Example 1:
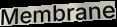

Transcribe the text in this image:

Membrane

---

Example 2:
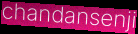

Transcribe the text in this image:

chandansenji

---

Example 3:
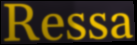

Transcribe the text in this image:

Ressa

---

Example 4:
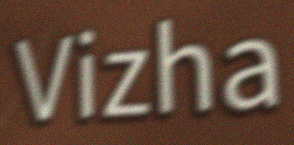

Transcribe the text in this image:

Vizha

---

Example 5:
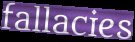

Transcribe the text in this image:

fallacies